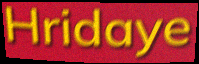
Hridaye